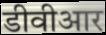
डीवीआर